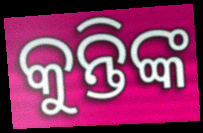
କୁନ୍ତିଙ୍କ